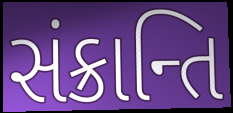
સંક્રાન્તિ